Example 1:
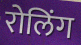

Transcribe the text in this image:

रोलिंग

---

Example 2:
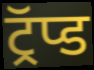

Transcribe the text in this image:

ट्रॅप्ड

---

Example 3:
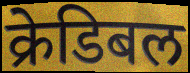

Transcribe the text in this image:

क्रेडिबल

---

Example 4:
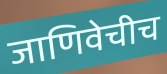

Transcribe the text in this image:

जाणिवेचीच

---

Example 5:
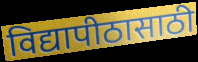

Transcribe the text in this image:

विद्यापीठासाठी